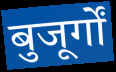
बुजूर्गों